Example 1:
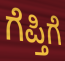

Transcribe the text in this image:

ಗೆಪ್ತಿಗೆ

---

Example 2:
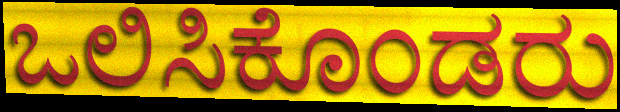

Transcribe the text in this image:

ಒಲಿಸಿಕೊಂಡರು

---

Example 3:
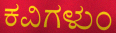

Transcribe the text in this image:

ಕವಿಗಳುಂ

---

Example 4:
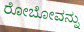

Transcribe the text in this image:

ರೋಬೋವನ್ನು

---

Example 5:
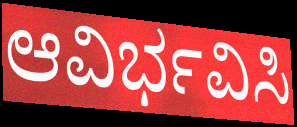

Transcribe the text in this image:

ಆವಿರ್ಭವಿಸಿ